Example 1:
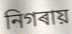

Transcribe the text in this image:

নিগৰায়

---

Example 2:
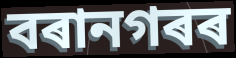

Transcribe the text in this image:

বৰানগৰৰ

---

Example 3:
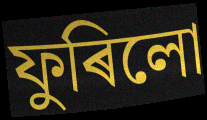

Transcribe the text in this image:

ফুৰিলো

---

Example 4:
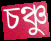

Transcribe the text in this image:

চঞ্চু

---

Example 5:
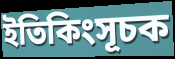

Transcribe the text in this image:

ইতিকিংসূচক